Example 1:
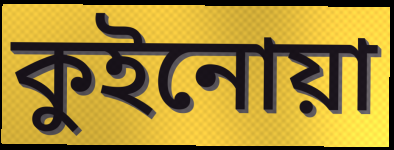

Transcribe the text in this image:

কুইনোয়া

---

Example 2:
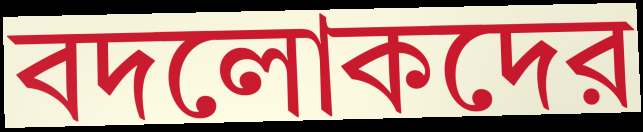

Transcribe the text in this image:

বদলোকদের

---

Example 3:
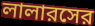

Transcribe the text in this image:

লালারসের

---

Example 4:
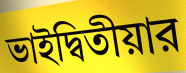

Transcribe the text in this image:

ভাইদ্বিতীয়ার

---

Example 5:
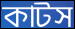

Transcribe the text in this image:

কাটস